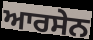
ਆਰਸੇਨ